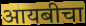
आयबीचा